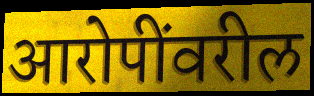
आरोपींवरील